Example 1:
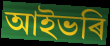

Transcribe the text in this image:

আইভৰি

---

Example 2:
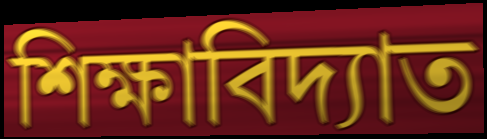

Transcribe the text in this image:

শিক্ষাবিদ্যাত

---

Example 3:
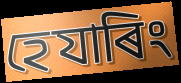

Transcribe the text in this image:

হেযাৰিং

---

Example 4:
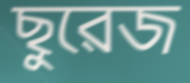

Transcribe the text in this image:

ছুৱেজ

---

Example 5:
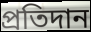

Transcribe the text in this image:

প্ৰতিদান